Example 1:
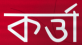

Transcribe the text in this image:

কর্ত্তা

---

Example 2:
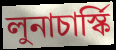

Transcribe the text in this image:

লুনাচার্স্কি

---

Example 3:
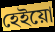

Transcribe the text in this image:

হেইয়ো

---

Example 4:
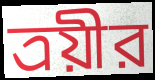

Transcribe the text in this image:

ত্রয়ীর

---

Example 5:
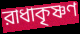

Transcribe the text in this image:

রাধাকৃষ্ণণ